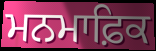
ਮਨਮਾਫ਼ਿਕ